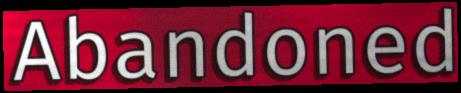
Abandoned